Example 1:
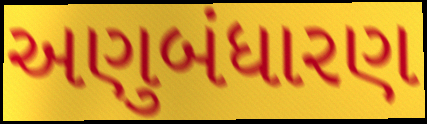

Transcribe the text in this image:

અણુબંધારણ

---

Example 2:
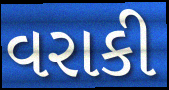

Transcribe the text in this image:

વરાકી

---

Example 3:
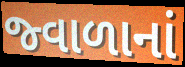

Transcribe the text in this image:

જ્વાળાનાં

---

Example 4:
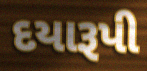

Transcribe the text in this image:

દયારૂપી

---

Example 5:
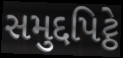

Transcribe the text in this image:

સમુદ્દપિટ્ઠે